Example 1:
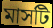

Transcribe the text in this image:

মাসটি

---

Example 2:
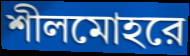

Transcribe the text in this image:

শীলমোহরে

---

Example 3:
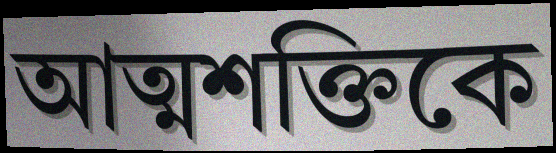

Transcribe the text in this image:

আত্মশক্তিকে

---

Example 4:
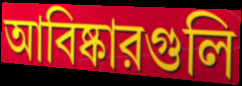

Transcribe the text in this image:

আবিষ্কারগুলি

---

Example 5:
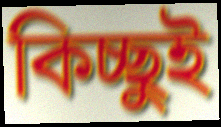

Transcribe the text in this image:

কিচ্ছুই